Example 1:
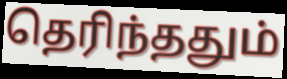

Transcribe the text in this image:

தெரிந்ததும்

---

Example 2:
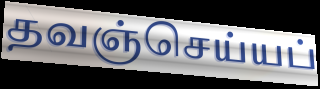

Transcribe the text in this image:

தவஞ்செய்யப்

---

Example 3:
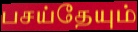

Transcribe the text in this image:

பசய்தேயும்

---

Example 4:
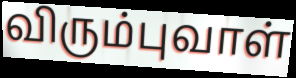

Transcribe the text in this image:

விரும்புவாள்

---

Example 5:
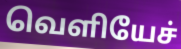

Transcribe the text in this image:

வெளியேச்